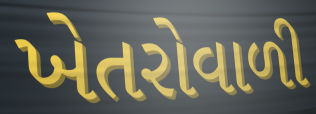
ખેતરોવાળી